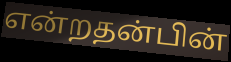
என்றதன்பின்